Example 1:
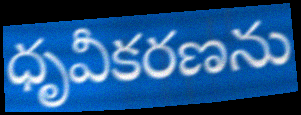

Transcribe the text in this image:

ధృవీకరణను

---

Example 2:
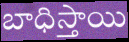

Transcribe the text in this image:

బాధిస్తాయి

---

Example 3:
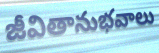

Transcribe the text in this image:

జీవితానుభవాలు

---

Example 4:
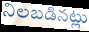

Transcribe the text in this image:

నిలబడినట్లు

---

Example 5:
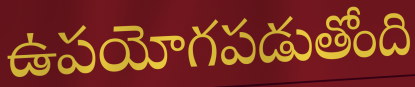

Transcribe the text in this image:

ఉపయోగపడుతోంది